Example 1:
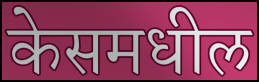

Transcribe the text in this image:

केसमधील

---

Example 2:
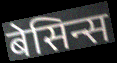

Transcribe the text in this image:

बेसिन्स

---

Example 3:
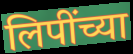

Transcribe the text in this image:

लिपींच्या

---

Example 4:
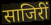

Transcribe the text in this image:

साजिरीं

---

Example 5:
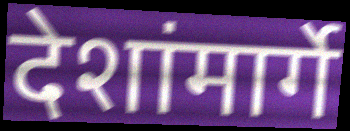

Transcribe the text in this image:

देशांमार्गे